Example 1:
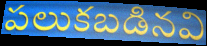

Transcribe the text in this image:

పలుకబడినవి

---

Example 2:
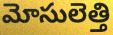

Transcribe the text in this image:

మోసులెత్తి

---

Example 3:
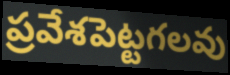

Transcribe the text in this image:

ప్రవేశపెట్టగలవు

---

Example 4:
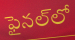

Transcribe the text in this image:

ఫైనల్‌లో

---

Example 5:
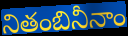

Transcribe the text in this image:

నితంబినీనాం